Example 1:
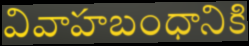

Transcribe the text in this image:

వివాహబంధానికి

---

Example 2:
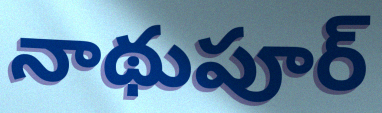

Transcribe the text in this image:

నాథుపూర్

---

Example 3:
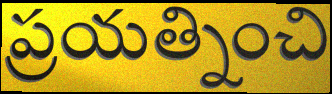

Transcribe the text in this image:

ప్రయత్నించి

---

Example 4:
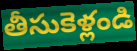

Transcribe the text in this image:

తీసుకెళ్లండి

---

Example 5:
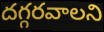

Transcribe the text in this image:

దగ్గరవాలని